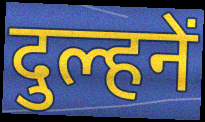
दुल्हनें